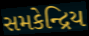
સમકેન્દ્રિય